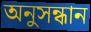
অনুসন্ধান